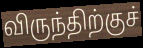
விருந்திற்குச்